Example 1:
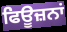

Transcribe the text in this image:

ਫਿਊਜ਼ਨਾਂ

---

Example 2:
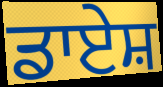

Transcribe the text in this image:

ਡਾਏਸ਼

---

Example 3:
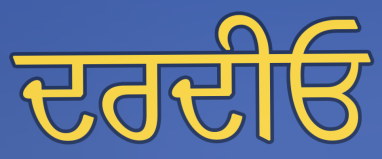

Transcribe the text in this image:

ਦਰਦੀਓ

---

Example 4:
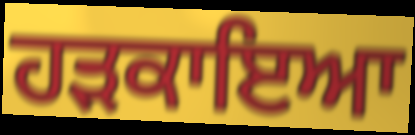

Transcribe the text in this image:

ਹੜਕਾਇਆ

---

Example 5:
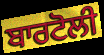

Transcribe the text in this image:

ਬਾਰਟੋਲੀ